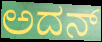
ಅದನ್